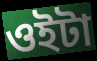
ওইটা